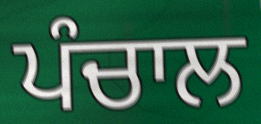
ਪੰਚਾਲ